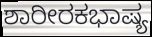
ಶಾರೀರಕಭಾಷ್ಯ